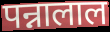
पन्नालाल